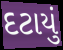
દટાયું